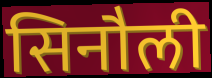
सिनौली